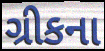
ગ્રીકના